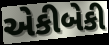
એકીબેકી